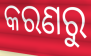
କରଣରୁ